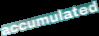
accumulated